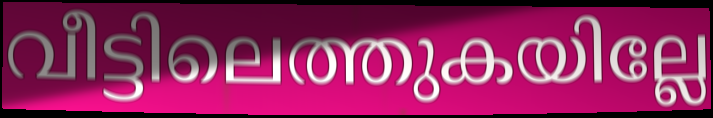
വീട്ടിലെത്തുകയില്ലേ